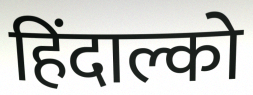
हिंदाल्को